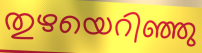
തുഴയെറിഞ്ഞു